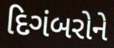
દિગંબરોને